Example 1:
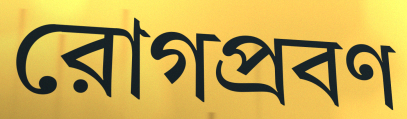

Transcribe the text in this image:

রোগপ্রবণ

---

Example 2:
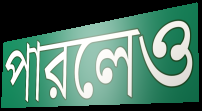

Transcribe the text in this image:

পারলেও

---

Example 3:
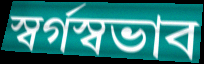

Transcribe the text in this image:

স্বর্গস্বভাব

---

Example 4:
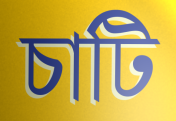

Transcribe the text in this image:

চাটি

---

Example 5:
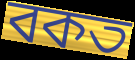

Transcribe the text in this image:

বকত